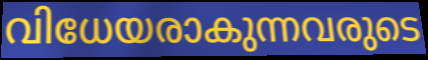
വിധേയരാകുന്നവരുടെ